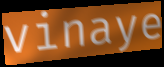
vinaye